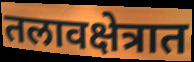
तलावक्षेत्रात